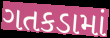
ગતકડામાં